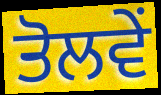
ਤੋਲਵੇਂ